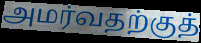
அமர்வதற்குத்